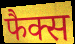
फैक्स